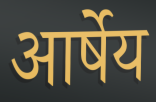
आर्षेय